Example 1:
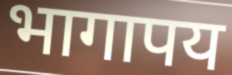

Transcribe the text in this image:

भागापय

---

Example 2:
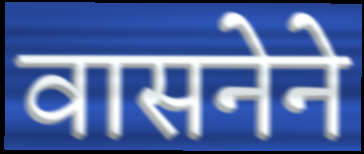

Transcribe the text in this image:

वासनेने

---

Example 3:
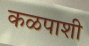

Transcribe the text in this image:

कळपाशी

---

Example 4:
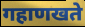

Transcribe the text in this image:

गहाणखते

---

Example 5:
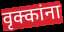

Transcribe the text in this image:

वृक्कांना